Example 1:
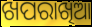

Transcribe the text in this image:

ଖପରାଖିଆ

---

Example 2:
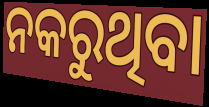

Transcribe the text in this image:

ନକରୁଥିବା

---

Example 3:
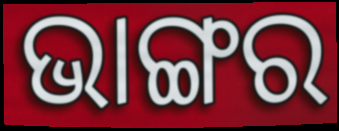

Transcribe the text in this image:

ଭାଙ୍ଗର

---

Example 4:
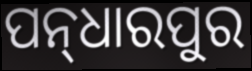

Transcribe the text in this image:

ପନ୍‌ଧାରପୁର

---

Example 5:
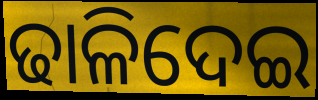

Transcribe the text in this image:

ଢାଳିଦେଇ